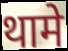
थामे